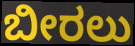
ಬೀರಲು